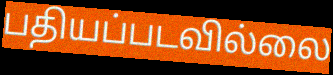
பதியப்படவில்லை